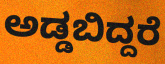
ಅಡ್ಡಬಿದ್ದರೆ